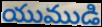
యుముడి